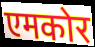
एमकोर